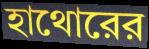
হাথোরের